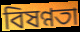
বিষণ্ণতা